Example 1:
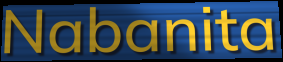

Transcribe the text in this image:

Nabanita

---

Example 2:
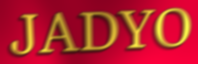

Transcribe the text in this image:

JADYO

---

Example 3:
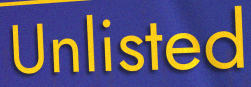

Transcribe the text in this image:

Unlisted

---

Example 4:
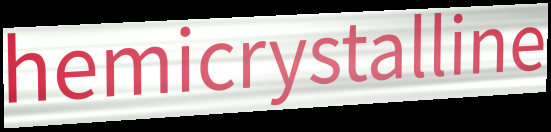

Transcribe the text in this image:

hemicrystalline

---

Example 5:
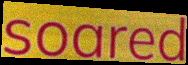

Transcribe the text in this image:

soared